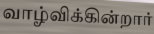
வாழ்விக்கின்றார்